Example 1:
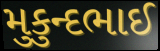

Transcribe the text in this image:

મુકુન્દભાઈ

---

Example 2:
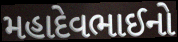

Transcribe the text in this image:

મહાદેવભાઈનો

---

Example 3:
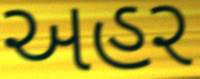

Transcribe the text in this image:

અહર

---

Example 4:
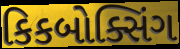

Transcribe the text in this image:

કિકબોક્સિંગ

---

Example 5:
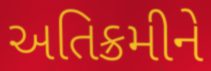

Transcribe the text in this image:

અતિક્રમીને